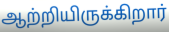
ஆற்றியிருக்கிறார்